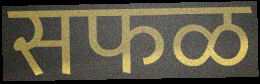
सफळ